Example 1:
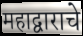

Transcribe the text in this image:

महाद्वाराचे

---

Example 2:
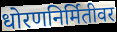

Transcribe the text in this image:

धोरणनिर्मितीवर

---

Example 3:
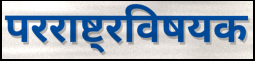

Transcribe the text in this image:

परराष्ट्रविषयक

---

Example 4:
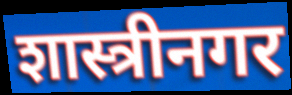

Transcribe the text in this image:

शास्त्रीनगर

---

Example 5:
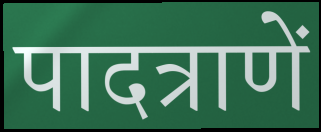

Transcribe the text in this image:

पादत्राणें